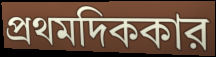
প্রথমদিককার